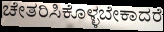
ಚೇತರಿಸಿಕೊಳ್ಳಬೇಕಾದರೆ